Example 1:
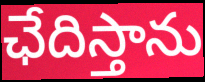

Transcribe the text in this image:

ఛేదిస్తాను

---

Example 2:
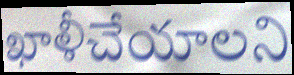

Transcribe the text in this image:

ఖాళీచేయాలని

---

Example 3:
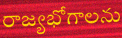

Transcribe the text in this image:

రాజ్యభోగాలను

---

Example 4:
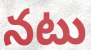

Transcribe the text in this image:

నటు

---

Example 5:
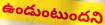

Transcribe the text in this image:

ఉండుంటుందని